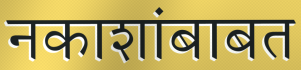
नकाशांबाबत